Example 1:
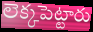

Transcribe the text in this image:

లెక్కపెట్టారు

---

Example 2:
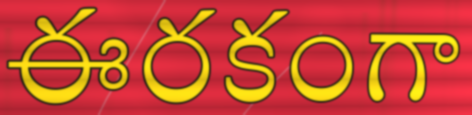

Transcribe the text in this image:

ఈరకంగా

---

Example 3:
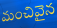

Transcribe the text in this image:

మంచివైన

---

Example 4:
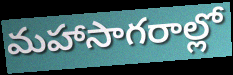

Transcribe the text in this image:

మహాసాగరాల్లో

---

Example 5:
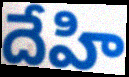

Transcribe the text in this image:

దేహి